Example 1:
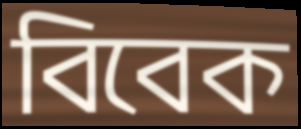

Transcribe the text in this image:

বিবেক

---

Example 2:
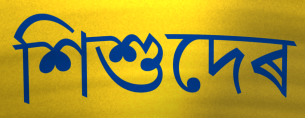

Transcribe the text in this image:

শিশুদেৰ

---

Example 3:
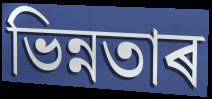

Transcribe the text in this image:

ভিন্নতাৰ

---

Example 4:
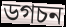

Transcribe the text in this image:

ডগচন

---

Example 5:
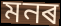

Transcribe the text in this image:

মনৰ